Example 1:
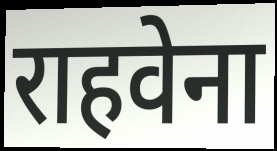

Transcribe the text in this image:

राहवेना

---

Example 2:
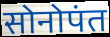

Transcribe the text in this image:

सोनोपंत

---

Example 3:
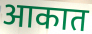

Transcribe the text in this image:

आकात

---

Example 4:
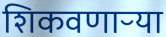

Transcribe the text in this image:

शिकवणाऱ्या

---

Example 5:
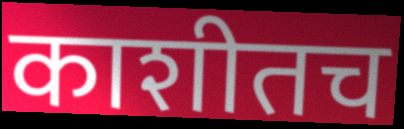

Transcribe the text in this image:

काशीतच